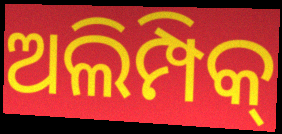
ଅଲିମ୍ପିକ୍